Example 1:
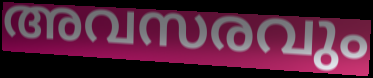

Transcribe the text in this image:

അവസരവും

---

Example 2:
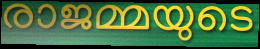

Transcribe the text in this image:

രാജമ്മയുടെ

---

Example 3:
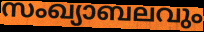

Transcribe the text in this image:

സംഖ്യാബലവും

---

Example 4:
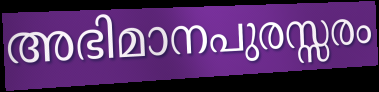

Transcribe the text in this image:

അഭിമാനപുരസ്സരം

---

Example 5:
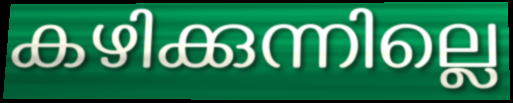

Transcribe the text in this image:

കഴിക്കുന്നില്ലെ